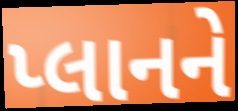
પ્લાનને